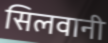
सिलवानी